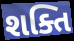
શક્તિ